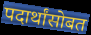
पदार्थांसोबत